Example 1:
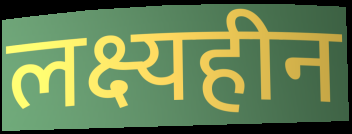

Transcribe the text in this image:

लक्ष्यहीन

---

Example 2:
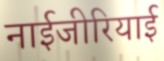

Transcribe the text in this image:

नाईजीरियाई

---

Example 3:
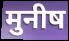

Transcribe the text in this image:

मुनीष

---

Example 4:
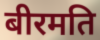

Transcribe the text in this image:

बीरमति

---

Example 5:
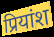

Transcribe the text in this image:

प्रियांश